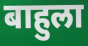
बाहुला